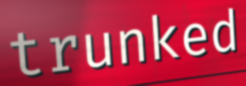
trunked